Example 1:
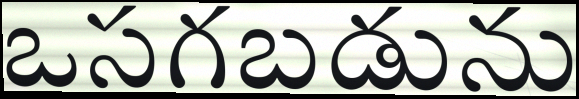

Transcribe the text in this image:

ఒసగబడును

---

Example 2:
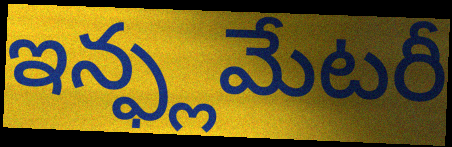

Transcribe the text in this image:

ఇన్ఫ్లమేటరీ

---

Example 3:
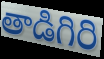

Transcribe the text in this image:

తాడిగిరి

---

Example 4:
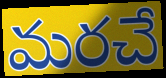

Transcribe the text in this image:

మరచే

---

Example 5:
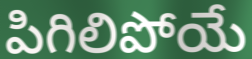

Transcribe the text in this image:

పిగిలిపోయే